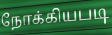
நோக்கியபடி